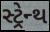
સ્ટ્રેન્થ